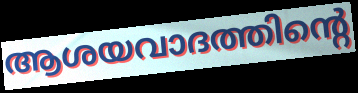
ആശയവാദത്തിന്റെ